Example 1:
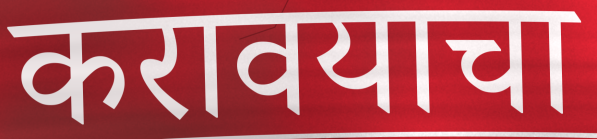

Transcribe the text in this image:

करावयाचा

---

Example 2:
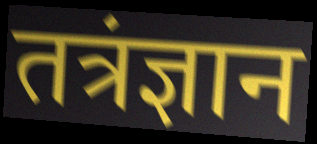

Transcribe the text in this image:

तत्रंज्ञान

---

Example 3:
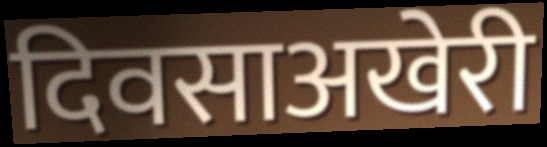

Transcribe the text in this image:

दिवसाअखेरी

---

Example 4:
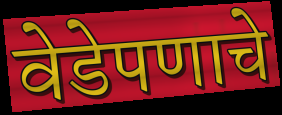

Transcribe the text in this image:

वेडेपणाचे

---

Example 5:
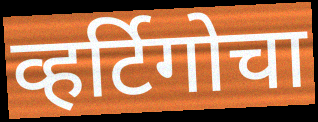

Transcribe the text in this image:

व्हर्टिगोचा